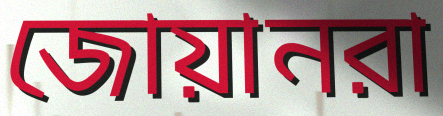
জোয়ানরা